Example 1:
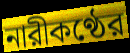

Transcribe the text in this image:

নারীকণ্ঠের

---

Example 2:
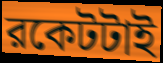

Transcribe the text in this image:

রকেটটাই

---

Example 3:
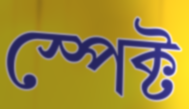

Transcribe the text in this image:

স্পেক্ট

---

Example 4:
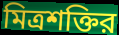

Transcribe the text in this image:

মিত্রশক্তির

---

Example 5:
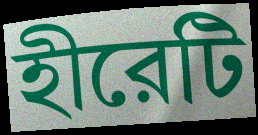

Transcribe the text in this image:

হীরেটি